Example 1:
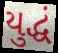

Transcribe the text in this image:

યુદ્ધં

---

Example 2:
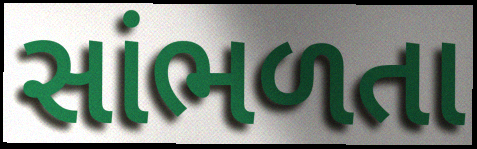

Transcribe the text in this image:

સાંભળતા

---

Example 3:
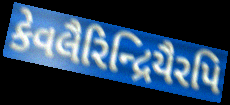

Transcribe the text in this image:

કેવલૈરિન્દ્રિયૈરપિ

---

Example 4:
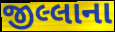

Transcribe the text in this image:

જીલ્લાના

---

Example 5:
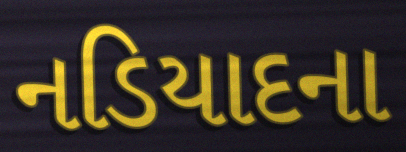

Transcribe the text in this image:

નડિયાદના